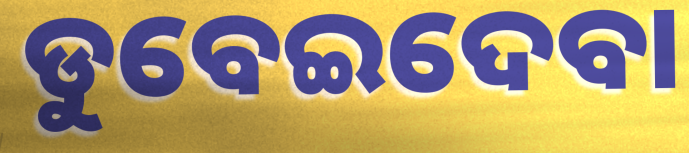
ଡୁବେଇଦେବା